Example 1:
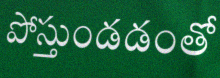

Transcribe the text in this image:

పోస్తుండడంతో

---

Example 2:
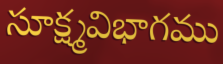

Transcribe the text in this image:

సూక్ష్మవిభాగము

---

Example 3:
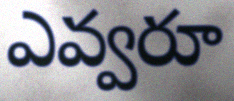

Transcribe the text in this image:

ఎవ్వరూ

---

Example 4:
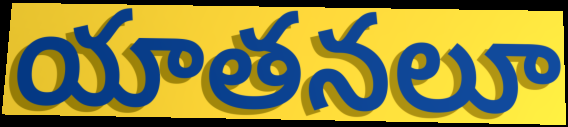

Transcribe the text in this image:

యాతనలూ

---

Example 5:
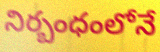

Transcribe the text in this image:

నిర్బంధంలోనే